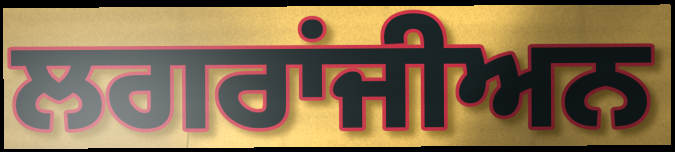
ਲਗਰਾਂਜੀਅਨ